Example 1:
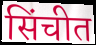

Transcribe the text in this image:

सिंचीत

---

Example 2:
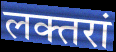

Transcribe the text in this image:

लक्तरां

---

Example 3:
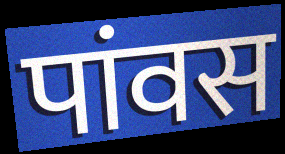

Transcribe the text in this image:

पांवस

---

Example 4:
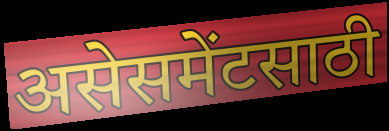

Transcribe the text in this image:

असेसमेंटसाठी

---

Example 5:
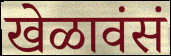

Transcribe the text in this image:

खेळावंसं